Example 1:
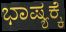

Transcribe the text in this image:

ಭಾಷ್ಯಕ್ಕೆ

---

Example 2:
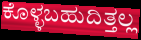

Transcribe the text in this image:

ಕೊಳ್ಳಬಹುದಿತ್ತಲ್ಲ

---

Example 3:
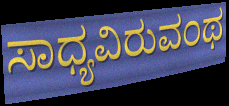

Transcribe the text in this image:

ಸಾಧ್ಯವಿರುವಂಥ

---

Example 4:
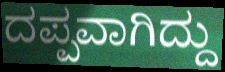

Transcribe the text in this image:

ದಪ್ಪವಾಗಿದ್ದು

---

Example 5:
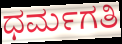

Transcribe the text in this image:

ಧರ್ಮಗತಿ